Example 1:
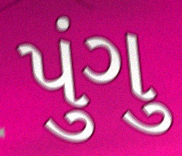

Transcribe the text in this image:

પુંગુ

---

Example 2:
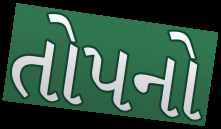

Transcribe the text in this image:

તોપનો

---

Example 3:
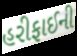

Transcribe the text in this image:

હરીફાઈની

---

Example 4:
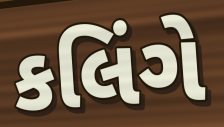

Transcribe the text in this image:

કલિંગે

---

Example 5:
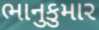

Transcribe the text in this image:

ભાનુકુમાર